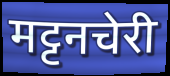
मट्टनचेरी